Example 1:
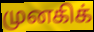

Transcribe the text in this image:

முனகிக்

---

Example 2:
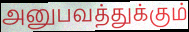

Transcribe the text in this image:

அனுபவத்துக்கும்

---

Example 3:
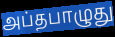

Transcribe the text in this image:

அப்தபாழுது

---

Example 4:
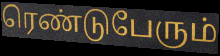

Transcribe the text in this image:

ரெண்டுபேரும்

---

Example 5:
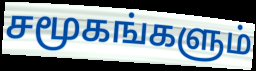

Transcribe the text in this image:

சமூகங்களும்